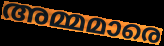
അമ്മമാരെ